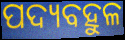
ପଦ୍ୟବହୁଳ